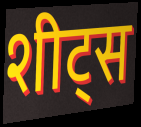
शीट्स